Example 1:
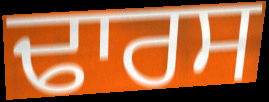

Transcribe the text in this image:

ਢਾਰਸ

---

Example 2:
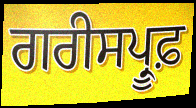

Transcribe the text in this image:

ਗਰੀਸਪ੍ਰੂਫ਼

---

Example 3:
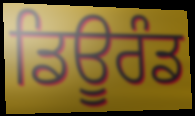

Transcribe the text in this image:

ਡਿਊਰੰਡ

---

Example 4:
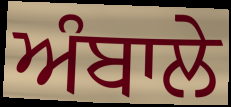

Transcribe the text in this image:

ਅੰਬਾਲੇ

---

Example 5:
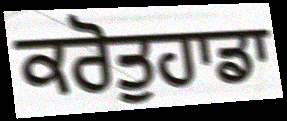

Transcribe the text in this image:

ਕਰੋਤੁਹਾਡਾ